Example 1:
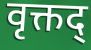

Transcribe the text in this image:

वृक्तद्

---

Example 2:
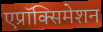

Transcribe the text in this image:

एप्रॉक्सिमेशन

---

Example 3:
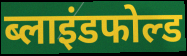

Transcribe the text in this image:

ब्लाइंडफोल्ड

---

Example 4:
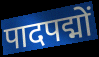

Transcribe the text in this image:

पादपद्मों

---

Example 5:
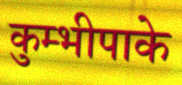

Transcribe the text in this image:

कुम्भीपाके